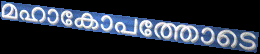
മഹാകോപത്തോടെ